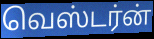
வெஸ்டர்ன்